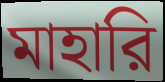
মাহারি